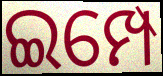
ଇମ୍ପେ